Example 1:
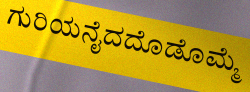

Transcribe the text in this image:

ಗುರಿಯನೈದದೊಡೊಮ್ಮೆ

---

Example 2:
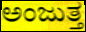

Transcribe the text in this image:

ಅಂಜುತ್ತ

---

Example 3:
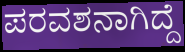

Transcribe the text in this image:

ಪರವಶನಾಗಿದ್ದೆ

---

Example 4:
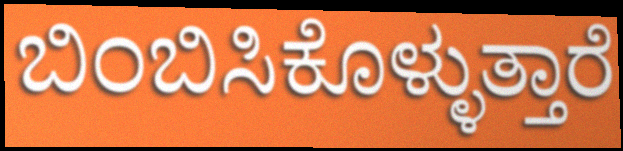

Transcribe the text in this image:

ಬಿಂಬಿಸಿಕೊಳ್ಳುತ್ತಾರೆ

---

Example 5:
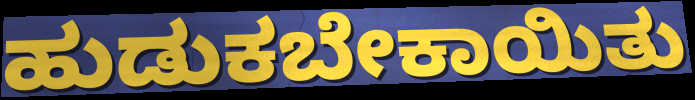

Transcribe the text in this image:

ಹುಡುಕಬೇಕಾಯಿತು